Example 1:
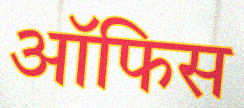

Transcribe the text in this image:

ऑफिस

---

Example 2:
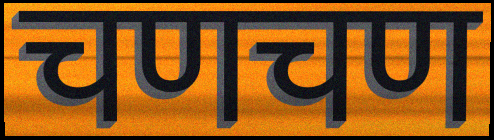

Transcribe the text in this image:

चणचण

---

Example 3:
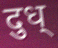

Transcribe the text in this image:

दुध्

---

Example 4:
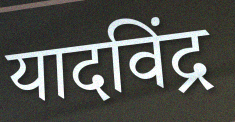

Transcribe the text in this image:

यादविंद्र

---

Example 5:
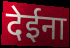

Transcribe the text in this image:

देईना